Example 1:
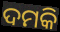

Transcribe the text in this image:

ଦମକି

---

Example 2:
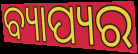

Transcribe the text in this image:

ବ୍ୟାପ୍ୟର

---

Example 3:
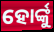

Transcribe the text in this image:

ହୋର୍ଙ୍କୁ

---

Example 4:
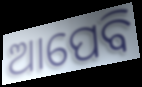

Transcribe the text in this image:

ଆପେବି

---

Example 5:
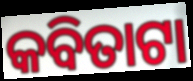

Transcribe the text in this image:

କବିତାଟା